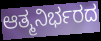
ಆತ್ಮನಿರ್ಭರದ